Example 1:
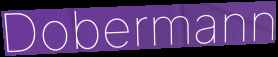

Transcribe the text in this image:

Dobermann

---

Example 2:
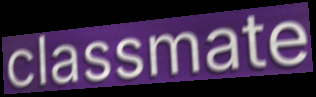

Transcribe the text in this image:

classmate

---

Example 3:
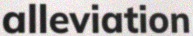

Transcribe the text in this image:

alleviation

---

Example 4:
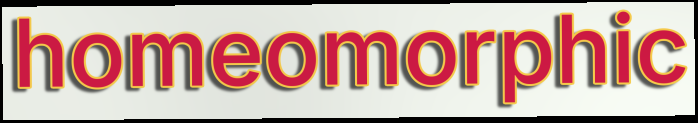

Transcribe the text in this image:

homeomorphic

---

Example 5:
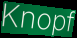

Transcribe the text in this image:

Knopf